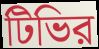
টিভির